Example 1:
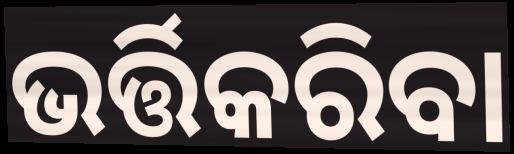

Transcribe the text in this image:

ଭର୍ତ୍ତିକରିବା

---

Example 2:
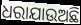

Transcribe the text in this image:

ଧରାଯାଉଅଛି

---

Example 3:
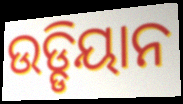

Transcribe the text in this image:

ଉଡ୍ଡିୟାନ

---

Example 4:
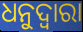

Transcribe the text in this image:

ଧନୁଦ୍ୱାରା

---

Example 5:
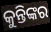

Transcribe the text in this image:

କୁନ୍ତିଙ୍କର